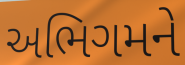
અભિગમને